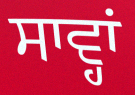
ਸਾਵ੍ਹਾਂ